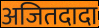
अजितदादा